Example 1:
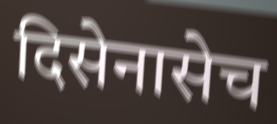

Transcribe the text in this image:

दिसेनासेच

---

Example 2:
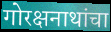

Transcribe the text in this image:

गोरक्षनाथांचा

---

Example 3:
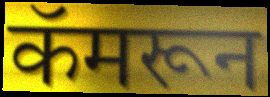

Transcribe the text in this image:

कॅमरून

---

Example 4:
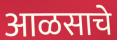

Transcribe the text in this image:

आळसाचे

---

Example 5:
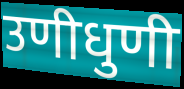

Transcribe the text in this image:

उणीधुणी